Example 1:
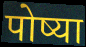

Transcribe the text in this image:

पोष्या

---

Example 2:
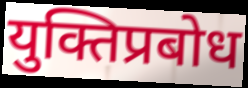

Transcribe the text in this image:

युक्तिप्रबोध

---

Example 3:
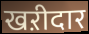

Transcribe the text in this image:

खऱीदार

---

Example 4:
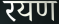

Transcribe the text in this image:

रयण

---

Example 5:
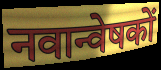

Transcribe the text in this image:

नवान्वेषकों